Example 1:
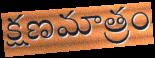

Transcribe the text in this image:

క్షణమాత్రం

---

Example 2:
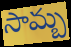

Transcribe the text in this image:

సామ్బ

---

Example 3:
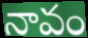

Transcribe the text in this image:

నావం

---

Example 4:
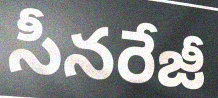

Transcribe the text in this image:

సీనరేజీ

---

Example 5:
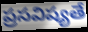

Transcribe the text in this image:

ప్రసవిష్యతే